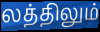
லத்திலும்